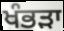
ਖੰਭੜਾ